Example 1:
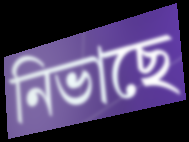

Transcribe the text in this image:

নিভাছে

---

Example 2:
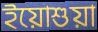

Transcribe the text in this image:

ইয়োশুয়া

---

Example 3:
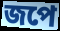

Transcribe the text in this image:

জপে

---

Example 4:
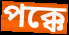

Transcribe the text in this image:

পক্কে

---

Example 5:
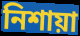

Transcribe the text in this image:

নিশায়া